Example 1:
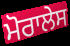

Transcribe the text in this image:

ਮੋਰਾਲੇਸ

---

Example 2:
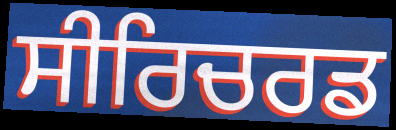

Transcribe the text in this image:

ਸੀਰਿਚਰਡ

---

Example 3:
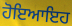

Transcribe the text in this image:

ਹੋਇਆਇਹ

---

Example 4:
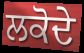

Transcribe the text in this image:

ਲਕੋਦੇ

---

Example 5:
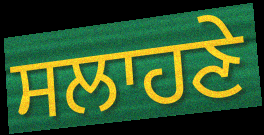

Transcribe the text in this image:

ਸਲਾਹਣੇ